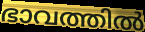
ഭാവത്തിൽ